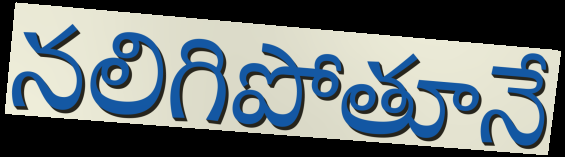
నలిగిపోతూనే